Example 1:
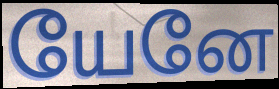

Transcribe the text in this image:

யேனே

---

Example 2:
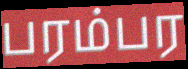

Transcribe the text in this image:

பரம்பர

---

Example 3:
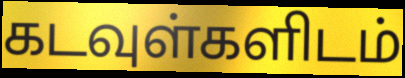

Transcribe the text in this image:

கடவுள்களிடம்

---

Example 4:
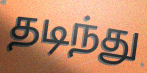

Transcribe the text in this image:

தடிந்து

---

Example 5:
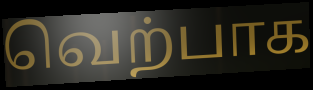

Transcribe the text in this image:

வெற்பாக